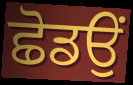
ਛੋਡਉਂ